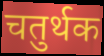
चतुर्थक